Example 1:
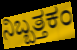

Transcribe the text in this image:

ನಿಬ್ಬತ್ತಕಂ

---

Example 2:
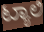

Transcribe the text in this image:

ಟ್ಯಾಲಿ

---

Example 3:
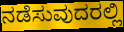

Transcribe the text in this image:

ನಡೆಸುವುದರಲ್ಲಿ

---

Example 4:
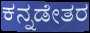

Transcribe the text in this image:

ಕನ್ನಡೇತರ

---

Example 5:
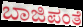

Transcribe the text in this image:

ಬಾಜಿಪಂತೆ